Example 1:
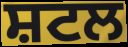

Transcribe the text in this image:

ਸ਼ਟਲ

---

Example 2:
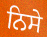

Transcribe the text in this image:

ਨਿਸੇ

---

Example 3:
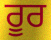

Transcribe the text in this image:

ਰੂਰ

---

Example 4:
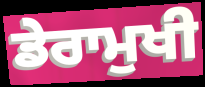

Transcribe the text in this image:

ਡੇਰਾਮੁਖੀ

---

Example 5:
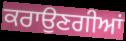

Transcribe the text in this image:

ਕਰਾਉਣਗੀਆਂ